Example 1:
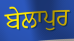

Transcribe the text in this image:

ਬੇਲਾਪੁਰ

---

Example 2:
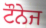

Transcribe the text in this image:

ਟੌਨੇਜ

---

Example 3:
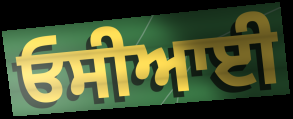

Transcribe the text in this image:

ਓਸੀਆਈ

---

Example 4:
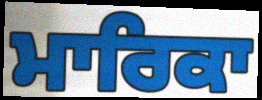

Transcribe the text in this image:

ਮਾਰਿਕਾ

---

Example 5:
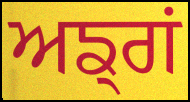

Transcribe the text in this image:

ਅਙ੍ਗਂ